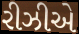
રીઝીએ